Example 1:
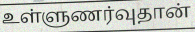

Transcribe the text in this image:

உள்ளுணர்வுதான்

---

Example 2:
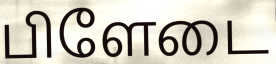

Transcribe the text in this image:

பிளேடை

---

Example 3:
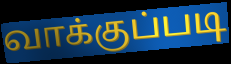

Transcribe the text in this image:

வாக்குப்படி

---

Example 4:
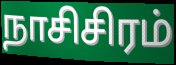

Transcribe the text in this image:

நாசிசிரம்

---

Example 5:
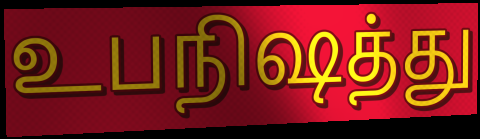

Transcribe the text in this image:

உபநிஷத்து